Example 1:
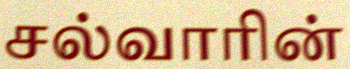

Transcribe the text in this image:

சல்வாரின்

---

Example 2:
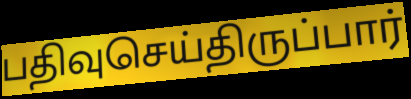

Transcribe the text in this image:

பதிவுசெய்திருப்பார்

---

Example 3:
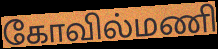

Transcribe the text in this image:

கோவில்மணி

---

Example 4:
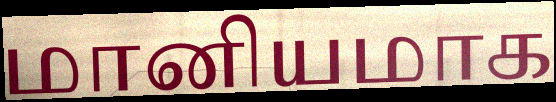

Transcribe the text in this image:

மானியமாக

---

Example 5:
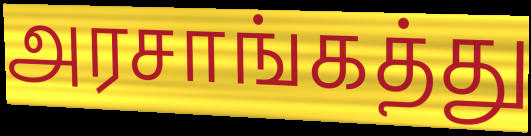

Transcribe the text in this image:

அரசாங்கத்து